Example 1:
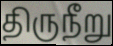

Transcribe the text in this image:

திருநீறு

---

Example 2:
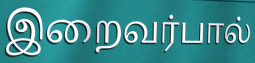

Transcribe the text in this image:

இறைவர்பால்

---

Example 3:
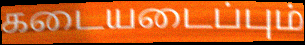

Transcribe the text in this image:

கடையடைப்பும்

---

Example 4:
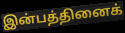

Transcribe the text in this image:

இன்பத்தினைக்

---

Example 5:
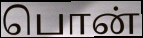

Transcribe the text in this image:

பொன்